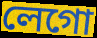
লেগো